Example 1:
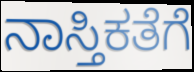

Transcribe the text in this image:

ನಾಸ್ತಿಕತೆಗೆ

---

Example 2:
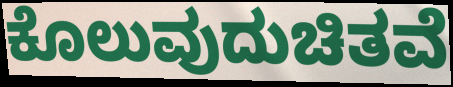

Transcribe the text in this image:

ಕೊಲುವುದುಚಿತವೆ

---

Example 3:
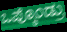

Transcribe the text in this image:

ಒಪ್ಕೊಂಡ್ರು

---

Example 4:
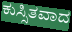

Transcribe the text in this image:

ಕುಸ್ಸಿತವಾದ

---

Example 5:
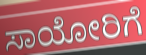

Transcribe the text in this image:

ಸಾಯೋರಿಗೆ